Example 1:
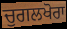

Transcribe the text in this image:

ਚੁਗਲਖੋਰਾ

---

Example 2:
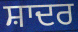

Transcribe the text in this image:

ਸ਼ਾਦਰ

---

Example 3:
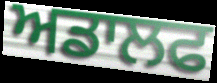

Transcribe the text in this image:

ਅਡਾਲਫ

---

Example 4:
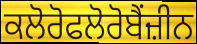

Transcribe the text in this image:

ਕਲੋਰੋਫਲੋਰੋਬੈਂਜ਼ੀਨ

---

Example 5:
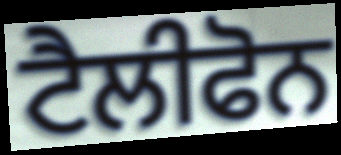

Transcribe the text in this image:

ਟੈਲੀਫੋਨ